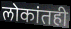
लोकांतही